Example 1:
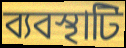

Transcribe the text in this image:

ব্যবস্থাটি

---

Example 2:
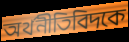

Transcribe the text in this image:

অর্থনীতিবিদকে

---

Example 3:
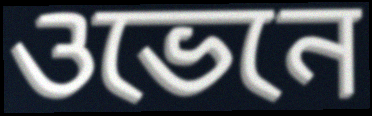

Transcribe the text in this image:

ওভেনে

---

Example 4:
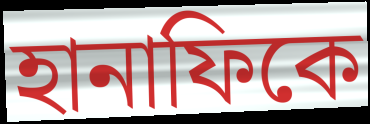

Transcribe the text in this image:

হানাফিকে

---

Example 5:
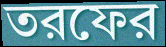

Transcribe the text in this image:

তরফের